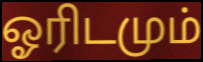
ஓரிடமும்